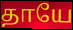
தாயே